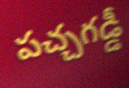
పచ్చగడ్డీ